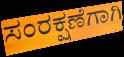
ಸಂರಕ್ಷಣೆಗಾಗಿ